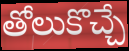
తోలుకొచ్చే